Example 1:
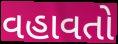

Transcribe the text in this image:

વહાવતો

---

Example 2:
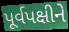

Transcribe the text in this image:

પૂર્વપક્ષીને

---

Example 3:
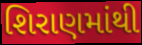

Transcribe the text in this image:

શિરાણમાંથી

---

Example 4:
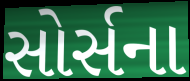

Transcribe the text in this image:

સોર્સના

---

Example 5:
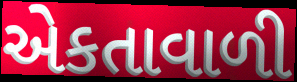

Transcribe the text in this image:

એકતાવાળી